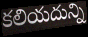
కలియదున్ని